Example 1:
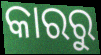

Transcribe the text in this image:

କାରରୁ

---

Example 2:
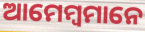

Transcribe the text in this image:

ଆମେମ୍ବମାନେ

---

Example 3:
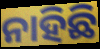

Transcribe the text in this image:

ନାହିଛି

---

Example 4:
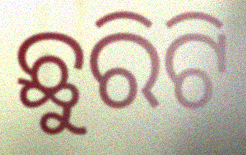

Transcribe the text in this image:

ଛୁରିଟି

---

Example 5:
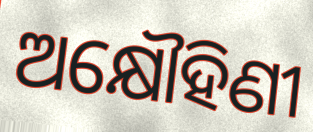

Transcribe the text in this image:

ଅକ୍ଷୌହିଣୀ